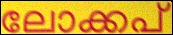
ലോക്കപ്